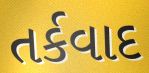
તર્કવાદ